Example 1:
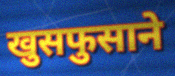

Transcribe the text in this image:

खुसफुसाने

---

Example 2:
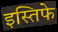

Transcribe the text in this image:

इस्तिफे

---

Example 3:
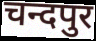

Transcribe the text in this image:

चन्दपुर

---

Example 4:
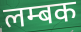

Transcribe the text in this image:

लम्बक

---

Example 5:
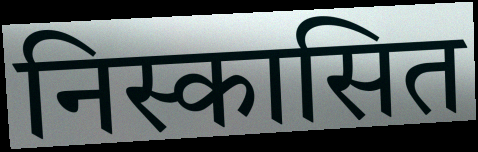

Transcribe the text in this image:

निस्कासित